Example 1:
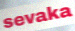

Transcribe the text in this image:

sevaka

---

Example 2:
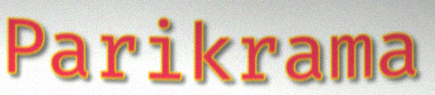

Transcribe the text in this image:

Parikrama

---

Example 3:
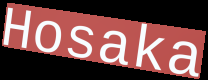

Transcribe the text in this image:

Hosaka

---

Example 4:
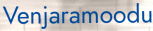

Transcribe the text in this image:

Venjaramoodu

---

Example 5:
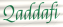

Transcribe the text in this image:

Qaddafi